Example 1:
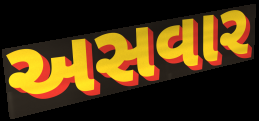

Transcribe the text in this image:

અસવાર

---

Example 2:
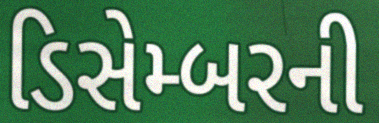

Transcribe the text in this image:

ડિસેમ્બરની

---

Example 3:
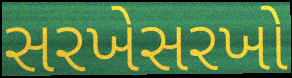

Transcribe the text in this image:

સરખેસરખો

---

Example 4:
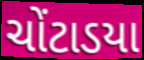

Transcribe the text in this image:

ચોંટાડયા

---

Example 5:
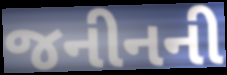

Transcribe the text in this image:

જનીનની